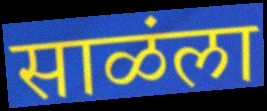
साळंला